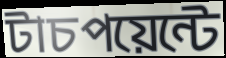
টাচপয়েন্টে